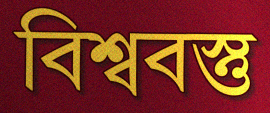
বিশ্ববস্তু